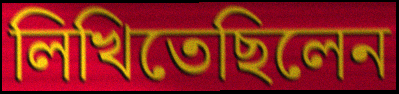
লিখিতেছিলেন